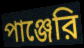
পাঞ্জেরি